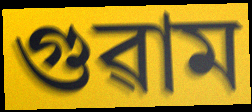
গুৱাম